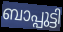
ബാപ്പുട്ടി